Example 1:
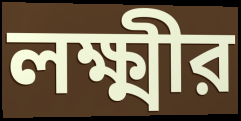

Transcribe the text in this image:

লক্ষ্মীর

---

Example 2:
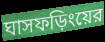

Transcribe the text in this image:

ঘাসফড়িংয়ের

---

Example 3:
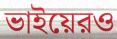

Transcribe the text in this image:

ভাইয়েরও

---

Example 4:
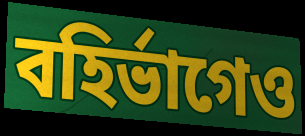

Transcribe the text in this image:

বহির্ভাগেও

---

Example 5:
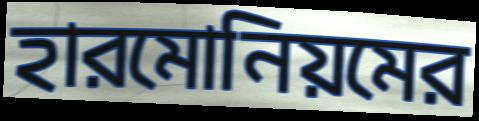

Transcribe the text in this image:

হারমোনিয়মের